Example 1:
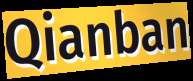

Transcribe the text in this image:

Qianban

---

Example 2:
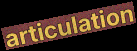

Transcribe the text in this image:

articulation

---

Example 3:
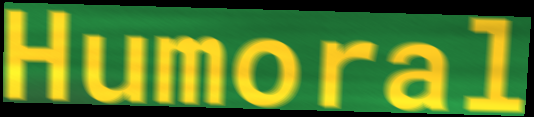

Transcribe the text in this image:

Humoral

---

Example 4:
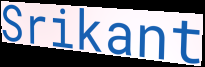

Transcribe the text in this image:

Srikant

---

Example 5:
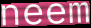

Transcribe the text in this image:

neem